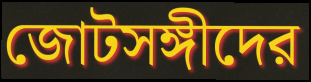
জোটসঙ্গীদের